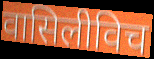
वासिलीविच